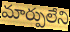
మార్పులేని